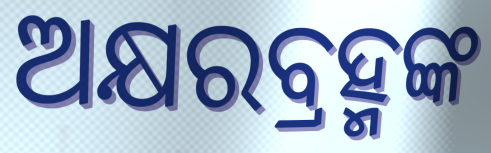
ଅକ୍ଷରବ୍ରହ୍ମଙ୍କ